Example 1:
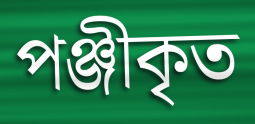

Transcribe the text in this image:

পঞ্জীকৃত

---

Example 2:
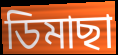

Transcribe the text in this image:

ডিমাছা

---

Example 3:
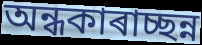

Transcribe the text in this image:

অন্ধকাৰাচ্ছন্ন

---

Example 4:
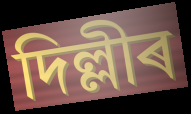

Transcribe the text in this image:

দিল্লীৰ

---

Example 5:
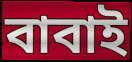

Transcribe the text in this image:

বাবাই